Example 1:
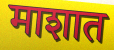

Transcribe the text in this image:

माशात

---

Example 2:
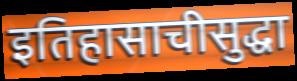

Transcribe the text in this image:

इतिहासाचीसुद्धा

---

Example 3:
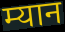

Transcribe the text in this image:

म्यान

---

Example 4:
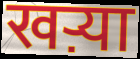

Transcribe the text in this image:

खऱ्‍या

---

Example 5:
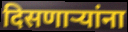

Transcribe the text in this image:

दिसणाऱ्यांना